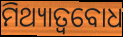
ମିଥ୍ୟାତ୍ୱବୋଧ